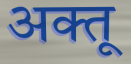
अक्तू